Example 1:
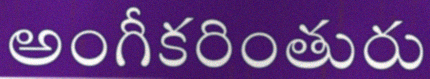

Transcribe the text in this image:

అంగీకరింతురు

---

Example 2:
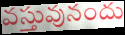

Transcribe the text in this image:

వస్తువునందు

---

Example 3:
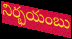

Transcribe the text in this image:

నిర్భయంబు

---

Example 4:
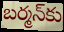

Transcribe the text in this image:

బర్మన్‌కు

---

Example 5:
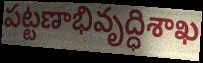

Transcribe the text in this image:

పట్టణాభివృద్ధిశాఖ